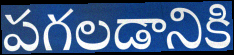
పగలడానికి